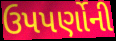
ઉપપર્ણોની